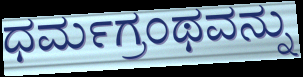
ಧರ್ಮಗ್ರಂಥವನ್ನು